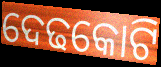
ଦେଢକୋଟି